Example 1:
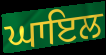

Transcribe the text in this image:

ਘਾਇਲ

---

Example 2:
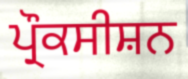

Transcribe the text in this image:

ਪ੍ਰੌਕਸੀਸ਼ਨ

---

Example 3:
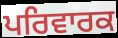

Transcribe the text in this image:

ਪਰਿਵਾਰਕ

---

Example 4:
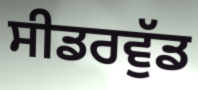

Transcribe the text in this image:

ਸੀਡਰਵੁੱਡ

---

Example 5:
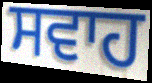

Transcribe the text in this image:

ਸਵਾਹ